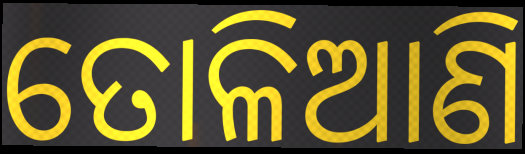
ତୋଳିଆଣି